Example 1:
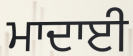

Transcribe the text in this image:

ਮਾਦਾਈ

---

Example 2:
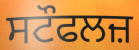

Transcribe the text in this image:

ਸਟੌਫਲਜ਼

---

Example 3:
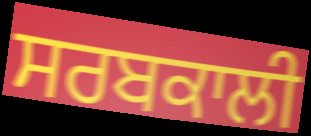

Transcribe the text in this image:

ਸਰਬਕਾਲੀ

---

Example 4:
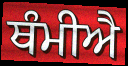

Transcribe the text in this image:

ਥੰਮੀਐ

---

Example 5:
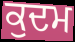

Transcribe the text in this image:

ਕੁਦਮ